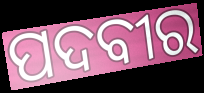
ପଦବୀର